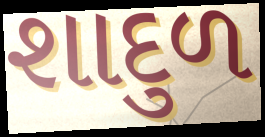
શાદુળ